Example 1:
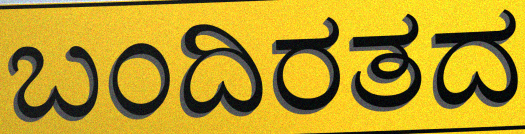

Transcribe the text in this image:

ಬಂದಿರತದ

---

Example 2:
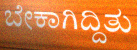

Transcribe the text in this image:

ಬೇಕಾಗಿದ್ದಿತು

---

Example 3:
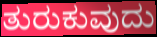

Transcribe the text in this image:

ತುರುಕುವುದು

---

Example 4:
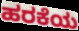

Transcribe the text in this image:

ಹರಕೆಯ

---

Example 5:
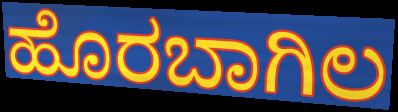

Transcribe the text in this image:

ಹೊರಬಾಗಿಲ